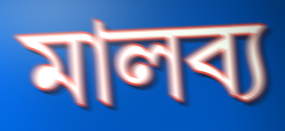
মালব্য